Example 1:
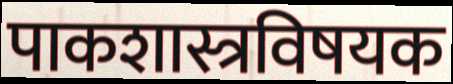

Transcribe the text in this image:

पाकशास्त्रविषयक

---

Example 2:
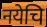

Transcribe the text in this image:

नयेचि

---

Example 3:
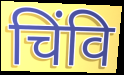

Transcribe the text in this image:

चिंवि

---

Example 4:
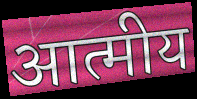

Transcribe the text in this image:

आत्मीय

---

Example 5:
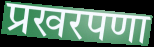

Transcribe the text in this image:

प्रखरपणा